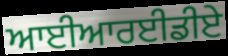
ਆਈਆਰਈਡੀਏ